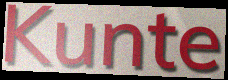
Kunte